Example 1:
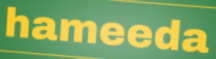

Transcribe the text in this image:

hameeda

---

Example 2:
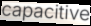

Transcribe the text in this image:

capacitive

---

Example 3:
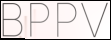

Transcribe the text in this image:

BPPV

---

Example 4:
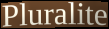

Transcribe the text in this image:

Pluralite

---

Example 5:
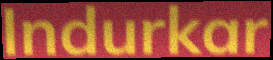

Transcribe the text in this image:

Indurkar